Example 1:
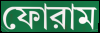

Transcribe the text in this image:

ফোরাম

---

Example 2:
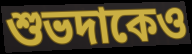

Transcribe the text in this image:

শুভদাকেও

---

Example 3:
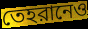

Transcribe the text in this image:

তেহরানেও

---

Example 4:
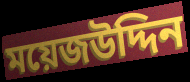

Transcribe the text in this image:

ময়েজউদ্দিন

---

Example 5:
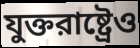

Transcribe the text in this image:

যুক্তরাষ্ট্রেও